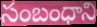
సంబంధాని